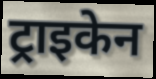
ट्राइकेन